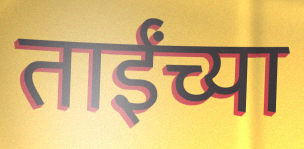
ताईंच्या